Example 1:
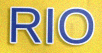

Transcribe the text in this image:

RIO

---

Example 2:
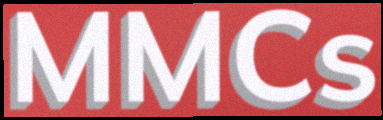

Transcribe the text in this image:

MMCs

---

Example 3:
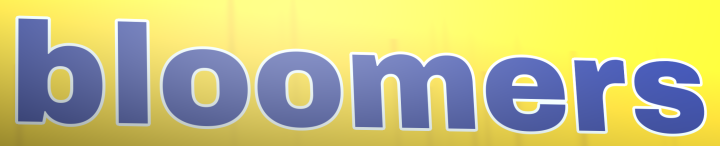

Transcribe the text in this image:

bloomers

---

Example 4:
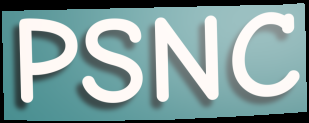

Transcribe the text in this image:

PSNC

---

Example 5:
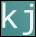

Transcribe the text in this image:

kj